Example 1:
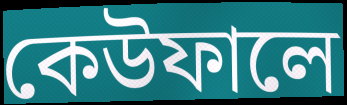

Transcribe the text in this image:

কেউফালে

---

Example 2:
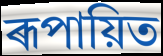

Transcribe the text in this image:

ৰূপায়িত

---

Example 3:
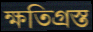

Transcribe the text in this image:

ক্ষতিগ্ৰস্ত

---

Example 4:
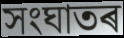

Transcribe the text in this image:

সংঘাতৰ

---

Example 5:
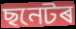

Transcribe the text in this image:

ছনেটৰ